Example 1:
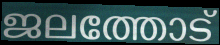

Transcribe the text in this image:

ജലത്തോട്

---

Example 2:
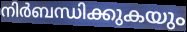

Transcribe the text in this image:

നിർബന്ധിക്കുകയും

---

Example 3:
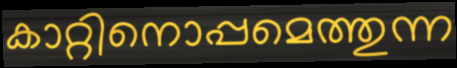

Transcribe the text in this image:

കാറ്റിനൊപ്പമെത്തുന്ന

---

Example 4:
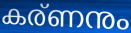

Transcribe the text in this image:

കര്ണനും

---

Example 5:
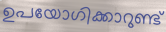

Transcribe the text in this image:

ഉപയോഗിക്കാറുണ്ട്